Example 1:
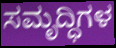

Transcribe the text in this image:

ಸಮೃದ್ಧಿಗಳ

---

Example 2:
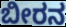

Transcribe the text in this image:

ಬೀರನ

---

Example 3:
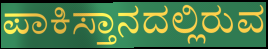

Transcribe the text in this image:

ಪಾಕಿಸ್ತಾನದಲ್ಲಿರುವ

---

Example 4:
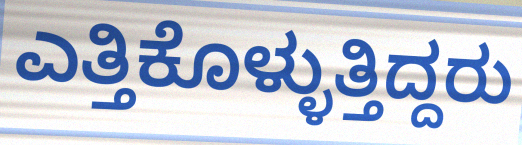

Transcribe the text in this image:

ಎತ್ತಿಕೊಳ್ಳುತ್ತಿದ್ದರು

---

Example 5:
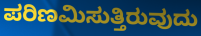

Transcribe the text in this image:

ಪರಿಣಮಿಸುತ್ತಿರುವುದು